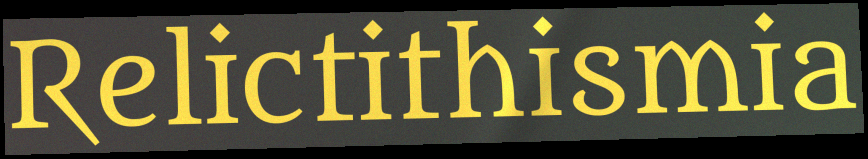
Relictithismia